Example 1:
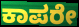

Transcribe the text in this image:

ಕಾಪರೇ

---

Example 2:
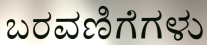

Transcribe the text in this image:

ಬರವಣಿಗೆಗಳು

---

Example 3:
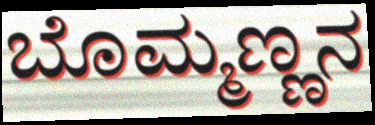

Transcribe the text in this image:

ಬೊಮ್ಮಣ್ಣನ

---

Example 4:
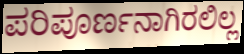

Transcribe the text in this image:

ಪರಿಪೂರ್ಣನಾಗಿರಲಿಲ್ಲ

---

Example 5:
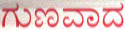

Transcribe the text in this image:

ಗುಣವಾದ